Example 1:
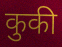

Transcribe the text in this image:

कुकी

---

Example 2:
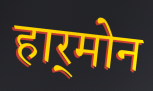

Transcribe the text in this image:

हार्मोन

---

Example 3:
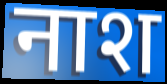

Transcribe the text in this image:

नाश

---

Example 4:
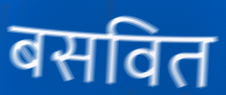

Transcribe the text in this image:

बसवित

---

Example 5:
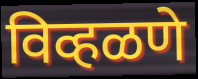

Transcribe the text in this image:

विव्हळणे